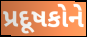
પ્રદૂષકોને